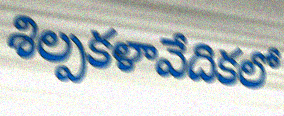
శిల్పకళావేదికలో